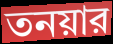
তনয়ার